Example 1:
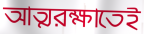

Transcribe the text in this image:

আত্মরক্ষাতেই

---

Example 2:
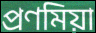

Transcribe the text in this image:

প্রণমিয়া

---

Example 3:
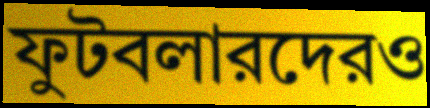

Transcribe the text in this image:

ফুটবলারদেরও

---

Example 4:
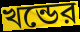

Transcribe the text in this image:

খন্ডের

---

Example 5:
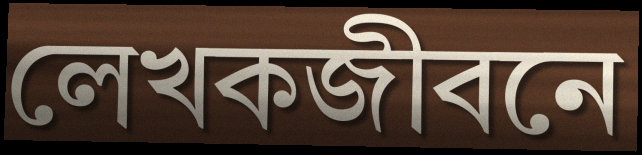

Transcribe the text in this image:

লেখকজীবনে